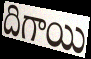
దిగాయి